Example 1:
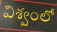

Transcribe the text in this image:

విశ్వంలో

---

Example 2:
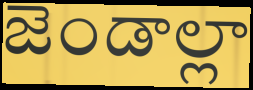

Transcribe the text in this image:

జెండాల్లా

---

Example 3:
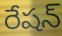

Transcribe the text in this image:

రేషన్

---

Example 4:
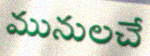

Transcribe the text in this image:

మునులచే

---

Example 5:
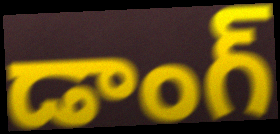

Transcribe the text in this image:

డాంగ్